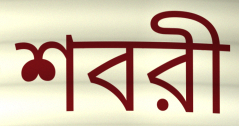
শবরী